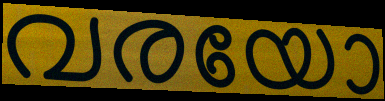
വരയോ